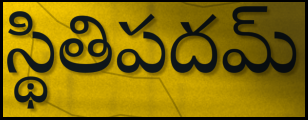
స్థితిపదమ్